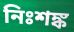
নিঃশঙ্ক